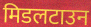
मिडलटाउन